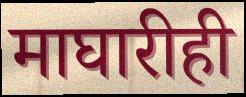
माघारीही